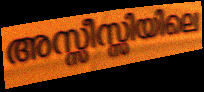
അസ്സീസ്സിയിലെ